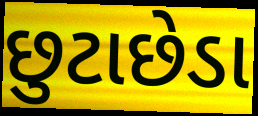
છુટાછેડા